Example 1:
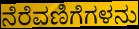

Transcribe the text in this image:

ನೆರೆವಣಿಗೆಗಳನು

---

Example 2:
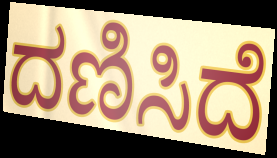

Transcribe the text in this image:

ದಣಿಸಿದೆ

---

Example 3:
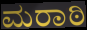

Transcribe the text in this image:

ಮರಾಠಿ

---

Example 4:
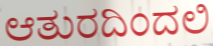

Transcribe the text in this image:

ಆತುರದಿಂದಲಿ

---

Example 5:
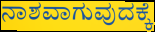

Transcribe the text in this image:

ನಾಶವಾಗುವುದಕ್ಕೆ